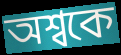
অশ্বকে